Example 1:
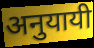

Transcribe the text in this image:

अनुयायी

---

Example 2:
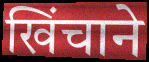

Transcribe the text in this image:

खिंचाने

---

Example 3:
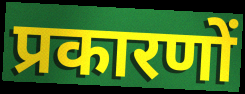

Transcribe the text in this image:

प्रकारणों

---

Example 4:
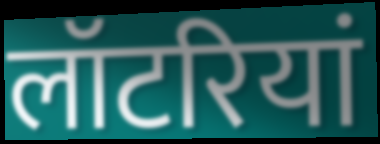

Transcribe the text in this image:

लॉटरियां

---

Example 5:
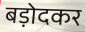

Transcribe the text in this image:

बड़ोदकर